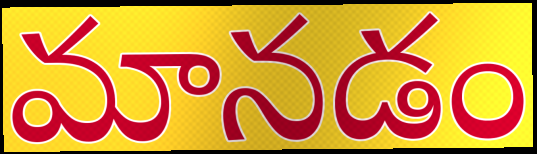
మానడం